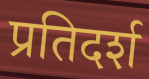
प्रतिदर्श